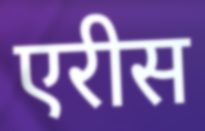
एरीस